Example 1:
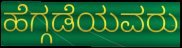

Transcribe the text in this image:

ಹೆಗ್ಗಡೆಯವರು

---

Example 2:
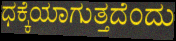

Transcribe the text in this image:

ಧಕ್ಕೆಯಾಗುತ್ತದೆಂದು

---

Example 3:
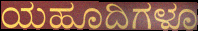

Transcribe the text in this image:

ಯಹೂದಿಗಳೂ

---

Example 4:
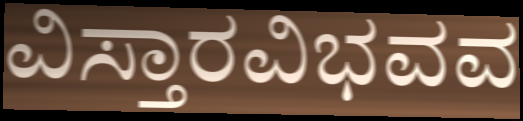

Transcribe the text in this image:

ವಿಸ್ತಾರವಿಭವವ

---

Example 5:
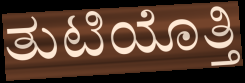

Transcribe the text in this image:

ತುಟಿಯೊತ್ತಿ